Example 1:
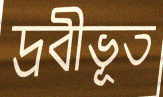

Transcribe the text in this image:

দ্রবীভূত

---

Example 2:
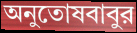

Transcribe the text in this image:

অনুতোষবাবুর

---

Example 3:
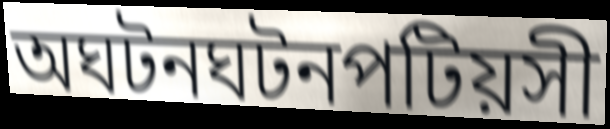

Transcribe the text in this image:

অঘটনঘটনপটিয়সী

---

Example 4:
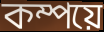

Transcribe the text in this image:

কম্পয়ে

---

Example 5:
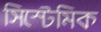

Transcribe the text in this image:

সিস্টেমিক